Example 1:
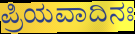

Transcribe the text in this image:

ಪ್ರಿಯವಾದಿನಃ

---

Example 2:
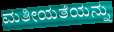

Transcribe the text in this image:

ಮತೀಯತೆಯನ್ನು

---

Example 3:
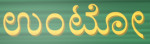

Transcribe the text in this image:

ಉಂಟೋ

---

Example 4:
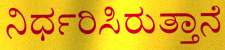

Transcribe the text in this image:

ನಿರ್ಧರಿಸಿರುತ್ತಾನೆ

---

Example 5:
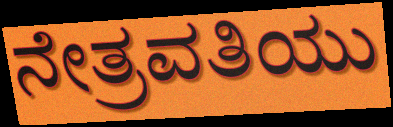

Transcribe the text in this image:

ನೇತ್ರವತಿಯು